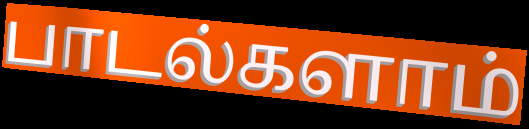
பாடல்களாம்